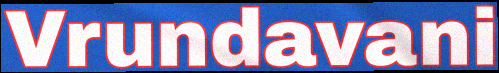
Vrundavani